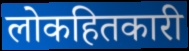
लोकहितकारी